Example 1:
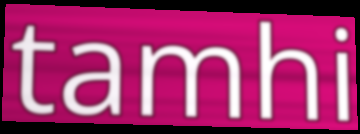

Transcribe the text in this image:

tamhi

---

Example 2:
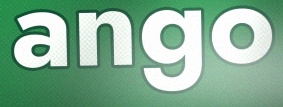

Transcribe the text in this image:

ango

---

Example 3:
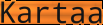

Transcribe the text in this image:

Kartaa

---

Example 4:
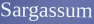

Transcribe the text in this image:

Sargassum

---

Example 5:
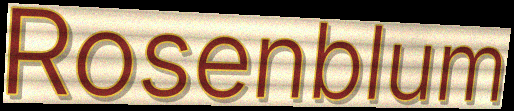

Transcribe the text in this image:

Rosenblum